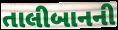
તાલીબાનની